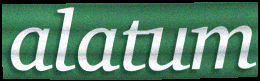
alatum